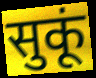
सुकूं